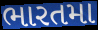
ભારતમા